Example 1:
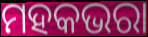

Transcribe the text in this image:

ମହକଭରା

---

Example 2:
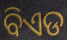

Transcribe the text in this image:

ବିଏଡ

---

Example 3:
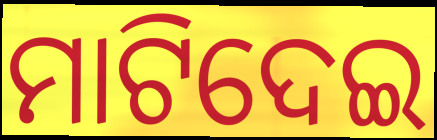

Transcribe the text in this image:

ମାଟିଦେଇ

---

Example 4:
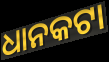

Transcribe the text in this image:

ଧାନକଟା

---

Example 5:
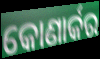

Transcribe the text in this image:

କୋଣାର୍କର